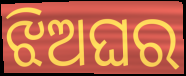
ଝିଅଘର